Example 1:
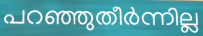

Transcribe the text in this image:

പറഞ്ഞുതീർന്നില്ല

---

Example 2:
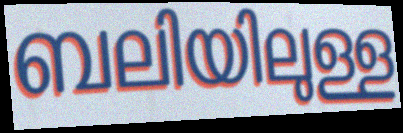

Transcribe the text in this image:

ബലിയിലുള്ള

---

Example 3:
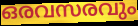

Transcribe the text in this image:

ഒരവസരവും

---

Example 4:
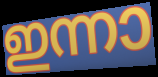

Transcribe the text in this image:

ഇന്നാ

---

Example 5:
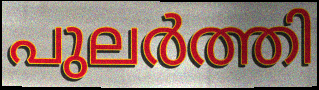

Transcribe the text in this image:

പുലർത്തി